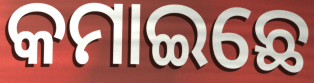
କମାଇଛେ